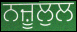
ਨਜ਼ੂਲੁਲ